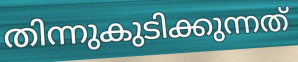
തിന്നുകുടിക്കുന്നത്